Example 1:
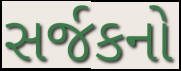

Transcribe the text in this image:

સર્જકનો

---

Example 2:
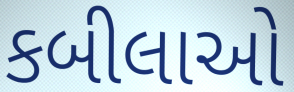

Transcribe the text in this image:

કબીલાઓ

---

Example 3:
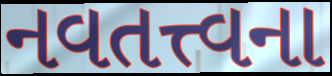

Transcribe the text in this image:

નવતત્ત્વના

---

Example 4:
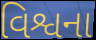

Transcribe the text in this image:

વિશ્વના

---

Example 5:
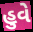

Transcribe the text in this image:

હુવે